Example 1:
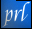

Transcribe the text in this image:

prl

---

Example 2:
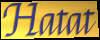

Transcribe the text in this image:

Hatat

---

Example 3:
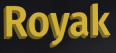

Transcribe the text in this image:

Royak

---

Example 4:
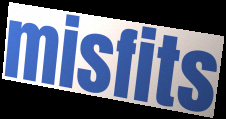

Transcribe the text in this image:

misfits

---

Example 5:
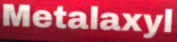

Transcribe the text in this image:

Metalaxyl